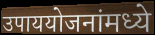
उपाययोजनांमध्ये